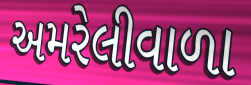
અમરેલીવાળા